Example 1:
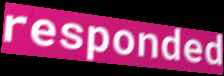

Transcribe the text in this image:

responded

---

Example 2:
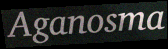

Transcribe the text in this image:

Aganosma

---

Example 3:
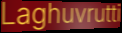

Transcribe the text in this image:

Laghuvrutti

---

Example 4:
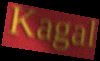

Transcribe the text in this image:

Kagal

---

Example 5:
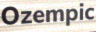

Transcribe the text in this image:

Ozempic